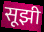
सूझी